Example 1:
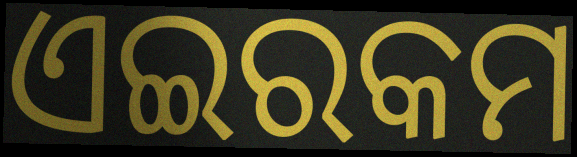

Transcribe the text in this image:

ଏଇରକମ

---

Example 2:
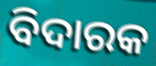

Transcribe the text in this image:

ବିଦାରକ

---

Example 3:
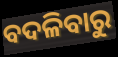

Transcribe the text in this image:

ବଦଳିବାରୁ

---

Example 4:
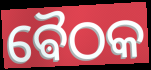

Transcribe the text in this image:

ଵୈଠକ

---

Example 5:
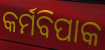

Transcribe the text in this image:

କର୍ମବିପାକ